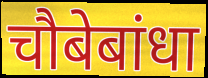
चौबेबांधा